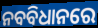
ନବବିଧାନରେ